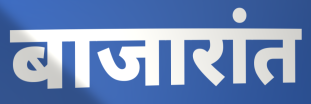
बाजारांत